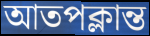
আতপক্লান্ত